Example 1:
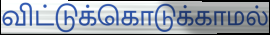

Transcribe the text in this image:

விட்டுக்கொடுக்காமல்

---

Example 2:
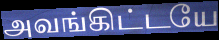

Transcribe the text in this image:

அவங்கிட்டயே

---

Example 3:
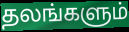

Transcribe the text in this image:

தலங்களும்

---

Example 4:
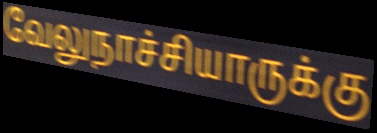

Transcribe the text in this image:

வேலுநாச்சியாருக்கு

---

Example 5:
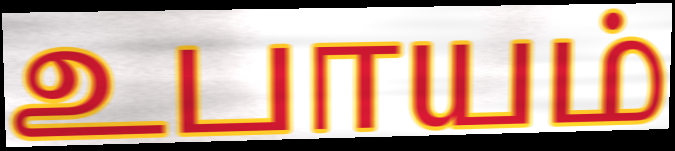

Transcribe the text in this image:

உபாயம்